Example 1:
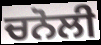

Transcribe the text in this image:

ਚਨੋਲੀ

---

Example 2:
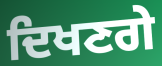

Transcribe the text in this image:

ਦਿਖਣਗੇ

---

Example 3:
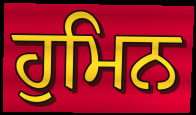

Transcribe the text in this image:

ਹੁਮਿਨ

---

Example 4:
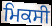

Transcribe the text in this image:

ਮਿਕਸੀ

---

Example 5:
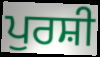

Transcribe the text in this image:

ਪੁਰਸ਼ੀ